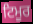
ਟਿਮੂਰ